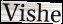
Vishe